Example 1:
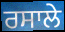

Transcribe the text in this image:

ਰਸਾਲੇ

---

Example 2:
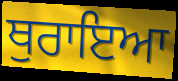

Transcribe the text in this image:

ਥੁਰਾਇਆ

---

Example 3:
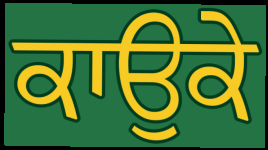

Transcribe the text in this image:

ਕਾਉਕੇ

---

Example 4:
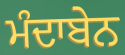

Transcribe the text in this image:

ਮੰਦਾਬੇਨ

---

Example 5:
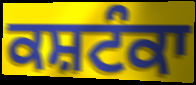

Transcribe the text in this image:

ਕਸ਼ਟੰਕਾ